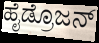
ಹೈಡ್ರೊಜನ್